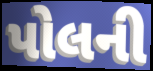
પોલની